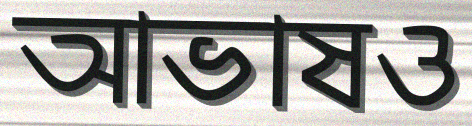
আভাষও